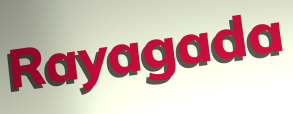
Rayagada